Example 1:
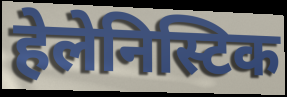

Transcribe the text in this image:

हेलेनिस्टिक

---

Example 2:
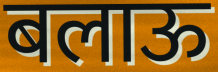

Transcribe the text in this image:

बलाऊ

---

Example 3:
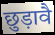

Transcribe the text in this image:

छुड़ावै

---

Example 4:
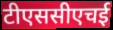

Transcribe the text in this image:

टीएससीएचई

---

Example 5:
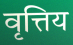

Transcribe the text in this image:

वृत्तिय